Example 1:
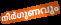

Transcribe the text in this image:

നിർഗുണവും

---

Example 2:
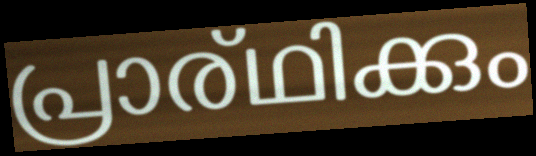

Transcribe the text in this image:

പ്രാര്ഥിക്കും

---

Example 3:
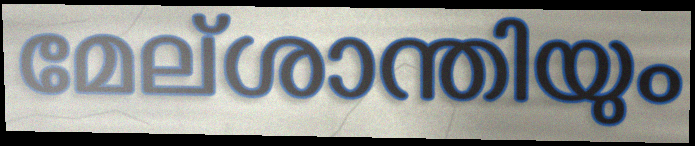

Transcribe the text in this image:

മേല്ശാന്തിയും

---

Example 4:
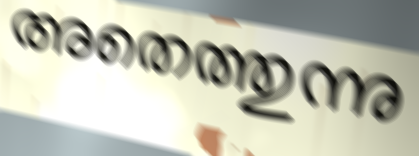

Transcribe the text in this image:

അതെത്തുന്നു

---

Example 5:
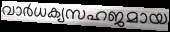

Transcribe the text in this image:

വാർധക്യസഹജമായ